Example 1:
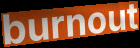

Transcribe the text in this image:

burnout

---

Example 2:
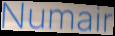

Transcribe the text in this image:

Numair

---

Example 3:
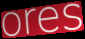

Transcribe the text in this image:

ores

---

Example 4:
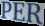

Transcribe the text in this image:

PER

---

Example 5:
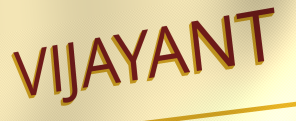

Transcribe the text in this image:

VIJAYANT